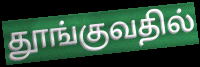
தூங்குவதில்